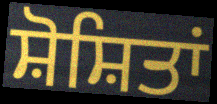
ਸ਼ੋਸ਼ਿਤਾਂ